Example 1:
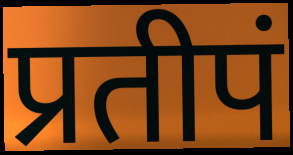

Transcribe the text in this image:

प्रतीपं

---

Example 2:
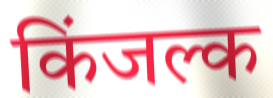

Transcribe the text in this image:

किंजल्क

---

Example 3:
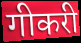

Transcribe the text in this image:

गीकरी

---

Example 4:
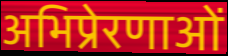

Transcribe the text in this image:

अभिप्रेरणाओं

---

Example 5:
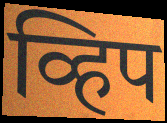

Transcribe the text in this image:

व्हिप